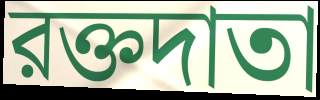
রক্তদাতা